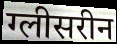
ग्लीसरीन